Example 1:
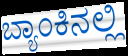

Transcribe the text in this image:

ಬ್ಯಾಂಕಿನಲ್ಲಿ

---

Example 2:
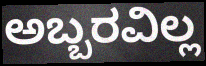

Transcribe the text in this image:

ಅಬ್ಬರವಿಲ್ಲ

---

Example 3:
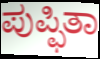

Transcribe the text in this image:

ಪುಪ್ಫಿತಾ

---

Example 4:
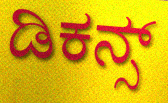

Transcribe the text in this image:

ಡಿಕನ್ಸ್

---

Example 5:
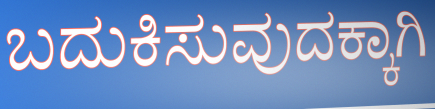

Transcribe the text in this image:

ಬದುಕಿಸುವುದಕ್ಕಾಗಿ